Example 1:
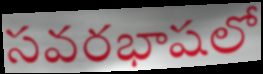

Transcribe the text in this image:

సవరభాషలో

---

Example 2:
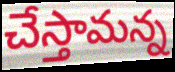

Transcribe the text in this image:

చేస్తామన్న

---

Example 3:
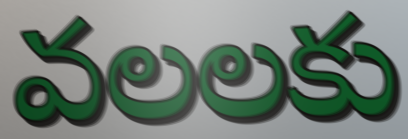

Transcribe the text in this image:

వలలకు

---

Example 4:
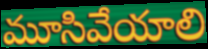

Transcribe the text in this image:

మూసివేయాలి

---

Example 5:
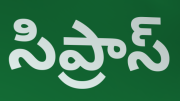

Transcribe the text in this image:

సిప్రాస్